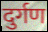
दुर्गण